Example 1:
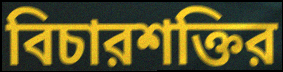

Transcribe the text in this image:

বিচারশক্তির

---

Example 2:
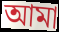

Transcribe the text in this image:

আমা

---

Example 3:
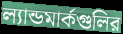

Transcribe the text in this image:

ল্যান্ডমার্কগুলির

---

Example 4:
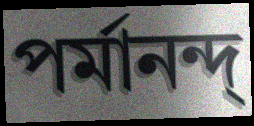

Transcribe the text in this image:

পর্মানন্দ্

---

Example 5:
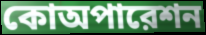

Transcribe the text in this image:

কোঅপারেশন